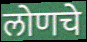
लोणचे